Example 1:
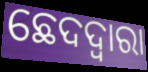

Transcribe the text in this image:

ଛେଦଦ୍ୱାରା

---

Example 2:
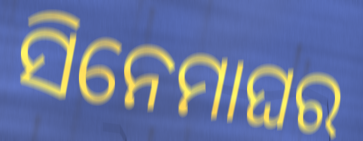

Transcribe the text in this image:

ସିନେମାଘର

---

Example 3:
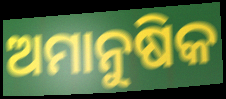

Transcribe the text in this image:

ଅମାନୁଷିକ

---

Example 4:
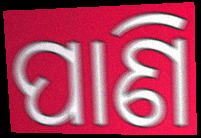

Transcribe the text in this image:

ପାଣି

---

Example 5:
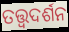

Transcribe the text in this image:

ତତ୍ତ୍ଵଦର୍ଶନ